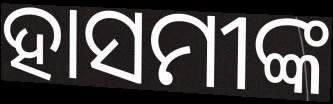
ହାସମୀଙ୍କ